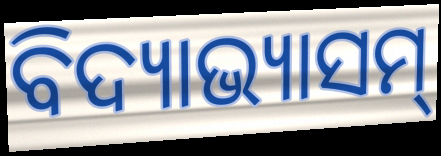
ବିଦ୍ୟାଭ୍ୟାସମ୍